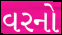
વરનો